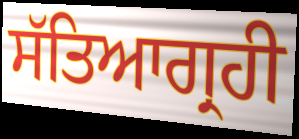
ਸੱਤਿਆਗ੍ਰਹੀ